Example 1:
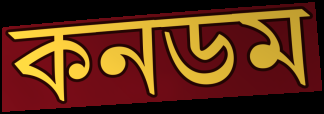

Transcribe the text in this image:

কনডম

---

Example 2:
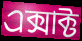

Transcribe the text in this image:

এক্সাক্ট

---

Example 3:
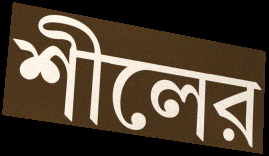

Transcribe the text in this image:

শীলের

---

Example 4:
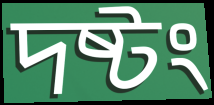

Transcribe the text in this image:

দষ্টং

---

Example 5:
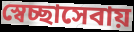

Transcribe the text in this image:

স্বেচ্ছাসেবায়